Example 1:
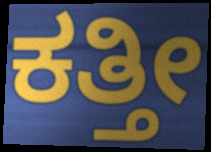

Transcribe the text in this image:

ಕತ್ತೀ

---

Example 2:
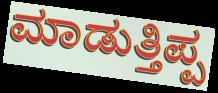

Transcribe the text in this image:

ಮಾಡುತ್ತಿಪ್ಪ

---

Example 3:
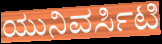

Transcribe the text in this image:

ಯುನಿವರ್ಸಿಟಿ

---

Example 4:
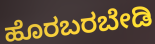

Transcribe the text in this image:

ಹೊರಬರಬೇಡಿ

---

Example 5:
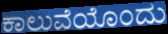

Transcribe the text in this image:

ಕಾಲುವೆಯೊಂದು